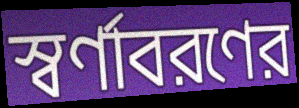
স্বর্ণাবরণের